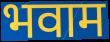
भवाम